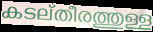
കടല്തീരത്തുള്ള